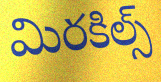
మిరకిల్స్